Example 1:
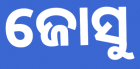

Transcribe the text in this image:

ଜୋସୁ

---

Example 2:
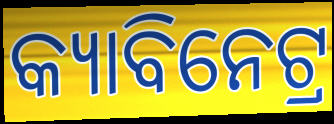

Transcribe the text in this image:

କ୍ୟାବିନେଟ୍ର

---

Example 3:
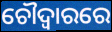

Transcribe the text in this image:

ଚୌଦ୍ୱାରରେ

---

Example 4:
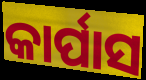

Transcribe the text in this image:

କାର୍ପାସ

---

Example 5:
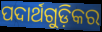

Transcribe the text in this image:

ପଦାର୍ଥଗୁଡ଼ିକର